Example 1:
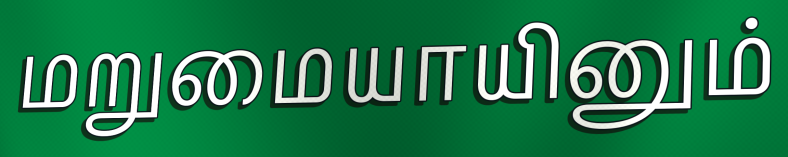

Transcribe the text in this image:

மறுமையாயினும்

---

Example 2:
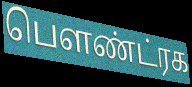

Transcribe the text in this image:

பௌண்ட்ரக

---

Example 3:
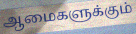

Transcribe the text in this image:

ஆமைகளுக்கும்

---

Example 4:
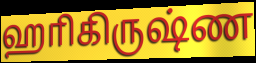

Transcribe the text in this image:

ஹரிகிருஷ்ண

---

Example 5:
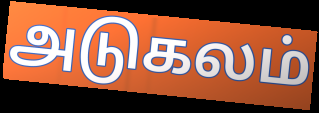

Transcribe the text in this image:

அடுகலம்